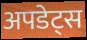
अपडेट्स